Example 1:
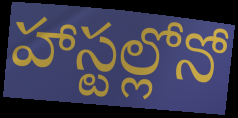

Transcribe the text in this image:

హాస్టల్లోనో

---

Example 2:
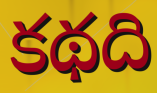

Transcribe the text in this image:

కథది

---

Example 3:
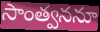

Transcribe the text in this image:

సాంత్వననూ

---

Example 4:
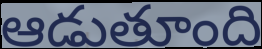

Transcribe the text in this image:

ఆడుతూంది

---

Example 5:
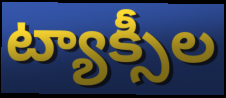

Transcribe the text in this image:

ట్యాక్సీల